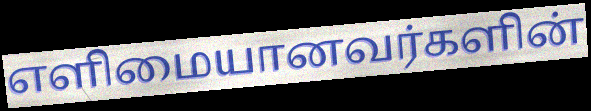
எளிமையானவர்களின்